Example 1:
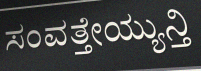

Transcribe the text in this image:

ಸಂವತ್ತೇಯ್ಯುನ್ತಿ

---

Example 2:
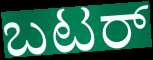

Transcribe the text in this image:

ಬಟರ್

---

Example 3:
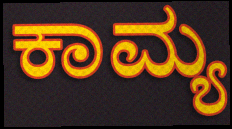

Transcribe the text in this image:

ಕಾಮ್ಯ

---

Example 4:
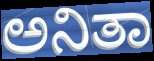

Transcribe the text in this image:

ಅನಿತಾ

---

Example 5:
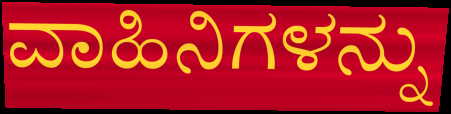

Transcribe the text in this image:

ವಾಹಿನಿಗಳನ್ನು